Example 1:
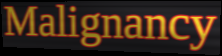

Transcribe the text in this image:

Malignancy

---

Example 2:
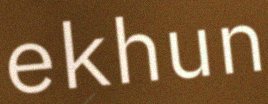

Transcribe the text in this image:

ekhun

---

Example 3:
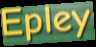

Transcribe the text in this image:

Epley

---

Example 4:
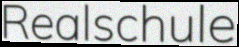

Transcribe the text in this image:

Realschule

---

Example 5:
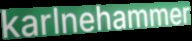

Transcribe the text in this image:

karlnehammer